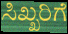
ಸಿಖ್ಖರಿಗೆ